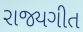
રાજ્યગીત